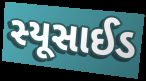
સ્યૂસાઈડ